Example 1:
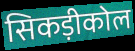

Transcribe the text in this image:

सिकड़ीकोल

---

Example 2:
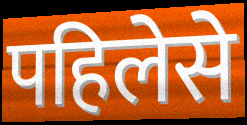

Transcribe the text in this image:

पहिलेसे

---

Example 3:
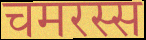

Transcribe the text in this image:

चमरस्स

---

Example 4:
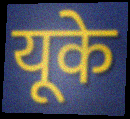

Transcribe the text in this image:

यूके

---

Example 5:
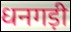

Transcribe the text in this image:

धनगड़ी